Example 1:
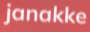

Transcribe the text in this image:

janakke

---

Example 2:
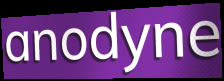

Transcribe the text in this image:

anodyne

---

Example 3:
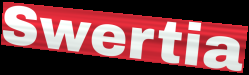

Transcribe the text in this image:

Swertia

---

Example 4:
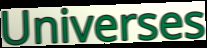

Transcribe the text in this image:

Universes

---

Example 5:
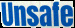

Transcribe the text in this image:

Unsafe